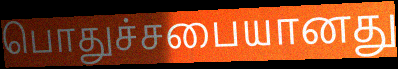
பொதுச்சபையானது